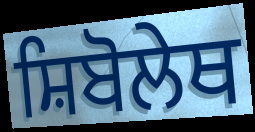
ਸ਼ਿਬੋਲੇਥ